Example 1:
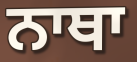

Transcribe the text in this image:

ਨਾਥਾ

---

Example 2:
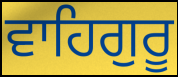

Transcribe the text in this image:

ਵਾਹਿਗੁਰੂ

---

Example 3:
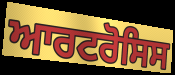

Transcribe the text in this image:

ਆਰਟਰੋਸਿਸ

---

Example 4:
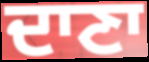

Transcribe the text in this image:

ਦਾਣਾ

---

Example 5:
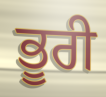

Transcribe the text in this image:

ਭੂਰੀ